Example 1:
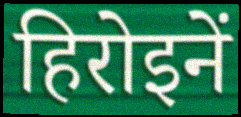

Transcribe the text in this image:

हिरोइनें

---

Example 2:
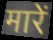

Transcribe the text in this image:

मारें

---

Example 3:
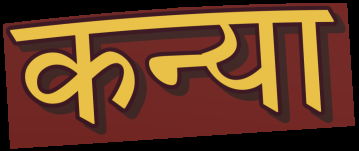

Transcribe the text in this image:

कन्या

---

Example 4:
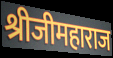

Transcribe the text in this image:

श्रीजीमहाराज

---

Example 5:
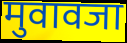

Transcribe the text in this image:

मुवावजा